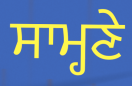
ਸਾਮ੍ਹਣੇ